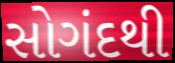
સોગંદથી